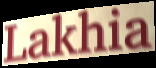
Lakhia